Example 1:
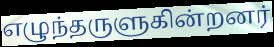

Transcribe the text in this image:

எழுந்தருளுகின்றனர்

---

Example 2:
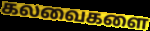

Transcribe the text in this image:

கலவைகளை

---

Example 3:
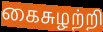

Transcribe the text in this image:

கைசுழற்றி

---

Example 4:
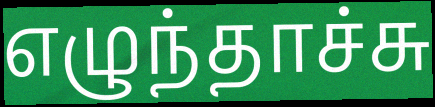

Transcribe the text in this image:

எழுந்தாச்சு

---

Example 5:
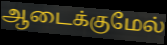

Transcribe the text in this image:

ஆடைக்குமேல்